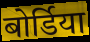
बोर्डिया